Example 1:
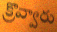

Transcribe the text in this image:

క్రొవ్వారు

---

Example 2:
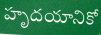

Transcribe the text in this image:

హృదయానికో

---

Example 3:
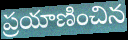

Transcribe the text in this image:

ప్రయాణించిన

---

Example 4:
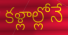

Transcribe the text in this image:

కళ్లాల్లోనే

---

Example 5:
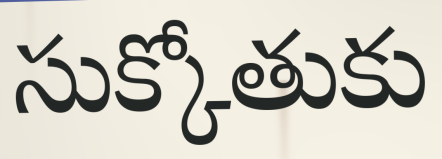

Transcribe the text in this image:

సుక్కోతుకు